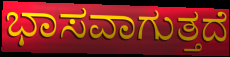
ಭಾಸವಾಗುತ್ತದೆ